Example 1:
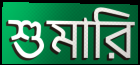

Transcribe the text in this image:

শুমারি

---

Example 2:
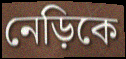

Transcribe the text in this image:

নেড়িকে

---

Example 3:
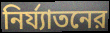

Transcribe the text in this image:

নির্য্যাতনের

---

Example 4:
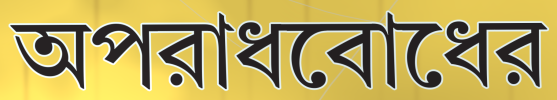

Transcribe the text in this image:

অপরাধবোধের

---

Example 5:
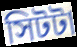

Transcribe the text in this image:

সিটটা